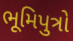
ભૂમિપુત્રો